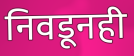
निवडूनही